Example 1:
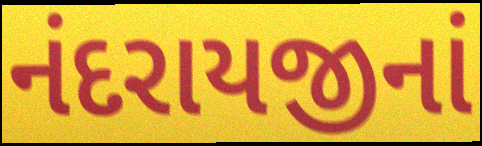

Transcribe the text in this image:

નંદરાયજીનાં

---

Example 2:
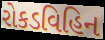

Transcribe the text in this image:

રોકડવિહિન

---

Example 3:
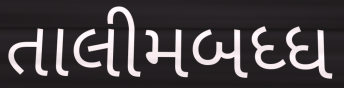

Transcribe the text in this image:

તાલીમબધ્ધ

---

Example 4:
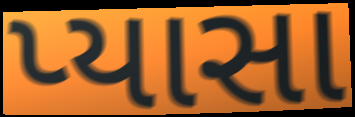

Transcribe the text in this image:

પ્યાસા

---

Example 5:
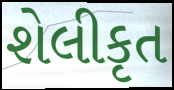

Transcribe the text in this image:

શેલીકૃત